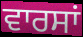
ਵਾਰਸਾਂ